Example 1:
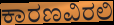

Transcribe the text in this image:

ಕಾರಣವಿರಲಿ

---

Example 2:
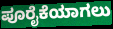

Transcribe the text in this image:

ಪೂರೈಕೆಯಾಗಲು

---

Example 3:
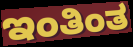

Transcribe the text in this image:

ಇಂತಿಂತ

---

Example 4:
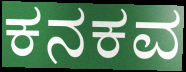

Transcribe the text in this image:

ಕನಕವ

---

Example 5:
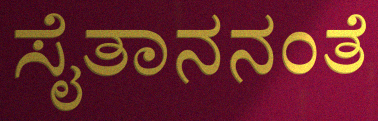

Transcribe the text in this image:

ಸೈತಾನನಂತೆ